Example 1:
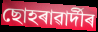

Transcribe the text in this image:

ছোহৰাৱাৰ্দীৰ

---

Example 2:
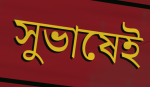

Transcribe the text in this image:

সুভাষেই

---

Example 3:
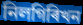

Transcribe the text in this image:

নিলগিৰিখন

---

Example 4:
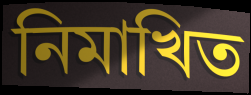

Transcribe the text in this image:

নিমাখিত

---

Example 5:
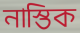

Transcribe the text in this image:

নাস্তিক